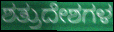
ಶತ್ರುದೇಶಗಳ